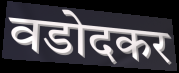
वडोदकर